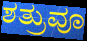
ಶತ್ರುವೂ